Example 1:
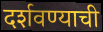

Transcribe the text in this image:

दर्शवण्याची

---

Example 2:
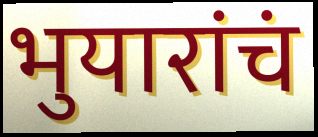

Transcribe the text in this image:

भुयारांचं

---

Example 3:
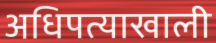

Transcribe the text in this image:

अधिपत्याखाली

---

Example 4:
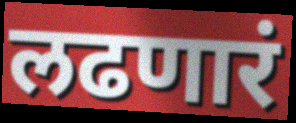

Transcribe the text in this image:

लढणारं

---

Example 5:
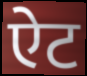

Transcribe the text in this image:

ऐट